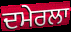
ਦਮੇਰਲਾ